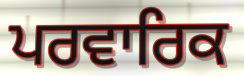
ਪਰਵਾਰਿਕ